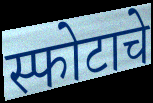
स्फोटाचे